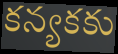
కన్యకకు